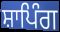
ਸ਼ਾਪਿੰਗ